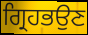
ਗ੍ਰਿਹਭਉਣ